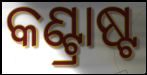
କଣ୍ଟ୍ରାଷ୍ଟ